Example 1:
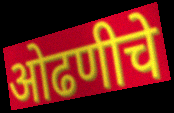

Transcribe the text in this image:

ओढणीचे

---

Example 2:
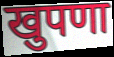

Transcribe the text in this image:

खुपणा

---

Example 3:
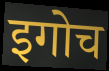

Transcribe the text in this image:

इगोच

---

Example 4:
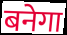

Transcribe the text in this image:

बनेगा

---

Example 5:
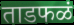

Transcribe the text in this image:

ताडफळं